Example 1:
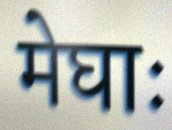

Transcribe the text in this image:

मेघाः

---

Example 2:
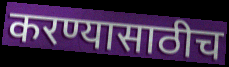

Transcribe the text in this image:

करण्यासाठीच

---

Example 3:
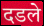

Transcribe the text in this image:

दडले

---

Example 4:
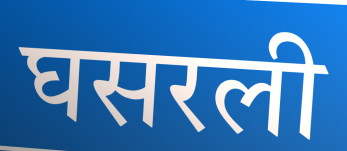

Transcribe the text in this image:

घसरली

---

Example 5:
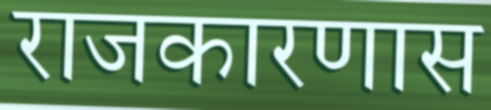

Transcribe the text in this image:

राजकारणास